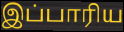
இப்பாரிய